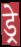
ड्रे